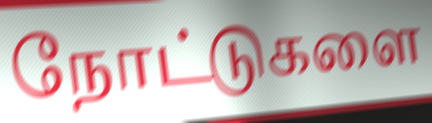
நோட்டுகளை